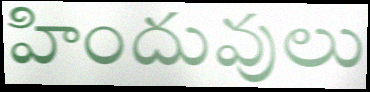
హిందువులు